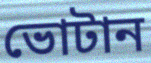
ভোটান